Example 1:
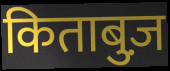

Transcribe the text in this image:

किताबुज़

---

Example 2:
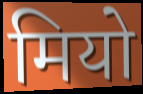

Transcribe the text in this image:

मियो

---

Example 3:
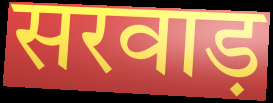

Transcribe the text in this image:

सरवाड़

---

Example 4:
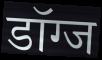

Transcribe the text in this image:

डॉग्ज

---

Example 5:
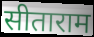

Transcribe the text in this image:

सीताराम